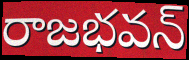
రాజభవన్